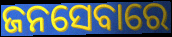
ଜନସେବାରେ